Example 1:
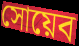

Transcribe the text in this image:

সোয়েব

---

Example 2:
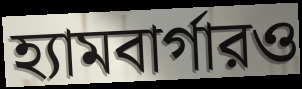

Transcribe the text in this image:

হ্যামবার্গারও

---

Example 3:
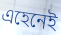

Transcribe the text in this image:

এহেনেই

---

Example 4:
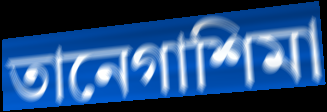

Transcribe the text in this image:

তানেগাশিমা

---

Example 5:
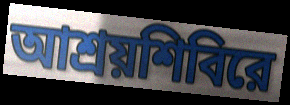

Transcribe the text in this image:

আশ্রয়শিবিরে